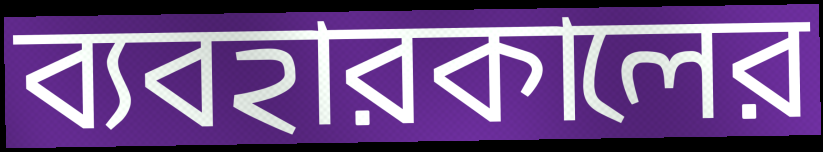
ব্যবহারকালের